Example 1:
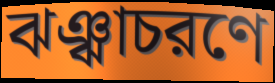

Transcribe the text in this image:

ঝঞ্ঝাচরণে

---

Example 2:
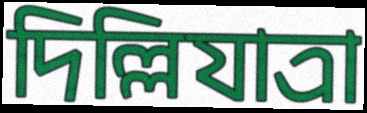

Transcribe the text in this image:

দিল্লিযাত্রা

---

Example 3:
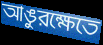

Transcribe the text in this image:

আঙুরক্ষেতে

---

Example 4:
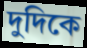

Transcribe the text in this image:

দুদিকে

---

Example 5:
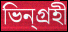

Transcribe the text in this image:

ভিন্গ্রহী